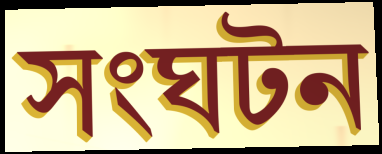
সংঘটন